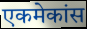
एकमेकांस